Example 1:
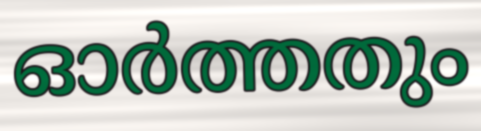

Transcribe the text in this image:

ഓർത്തതും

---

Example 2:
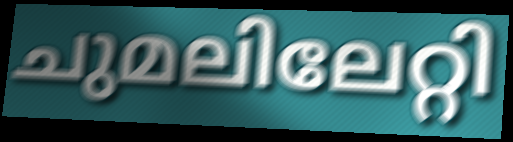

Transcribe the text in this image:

ചുമലിലേറ്റി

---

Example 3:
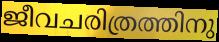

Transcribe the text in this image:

ജീവചരിത്രത്തിനു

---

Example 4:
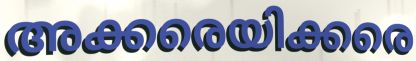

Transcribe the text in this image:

അക്കരെയിക്കരെ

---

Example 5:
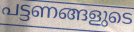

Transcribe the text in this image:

പട്ടണങ്ങളുടെ